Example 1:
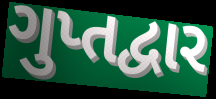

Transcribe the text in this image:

ગુપ્તદ્વાર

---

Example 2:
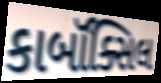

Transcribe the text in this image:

કાર્બૉક્સિલ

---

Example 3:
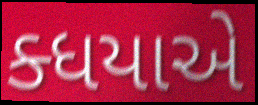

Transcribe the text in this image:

ક્ધયાએ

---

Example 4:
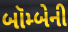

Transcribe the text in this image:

બૉમ્બેની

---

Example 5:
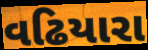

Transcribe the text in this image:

વઢિયારા